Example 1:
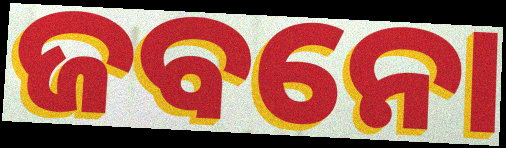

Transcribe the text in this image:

ଜବନୋ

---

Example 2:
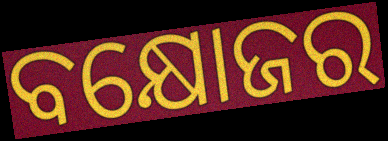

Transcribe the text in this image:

ବକ୍ଷୋଜର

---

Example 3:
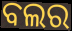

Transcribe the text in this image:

ବଲର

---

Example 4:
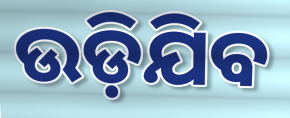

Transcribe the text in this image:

ଉଡ଼ିଯିବ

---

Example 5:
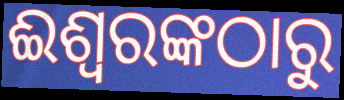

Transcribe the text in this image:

ଈଶ୍ଵରଙ୍କଠାରୁ